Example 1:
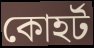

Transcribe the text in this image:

কোহর্ট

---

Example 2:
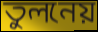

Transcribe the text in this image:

তুলনেয়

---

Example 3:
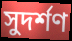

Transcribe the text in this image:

সুদর্শণ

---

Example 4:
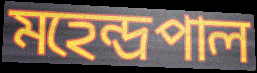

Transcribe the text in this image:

মহেন্দ্রপাল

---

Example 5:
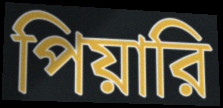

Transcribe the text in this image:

পিয়ারি